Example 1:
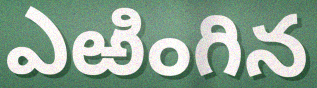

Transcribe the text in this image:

ఎఱింగిన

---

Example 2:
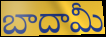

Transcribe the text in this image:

బాదామీ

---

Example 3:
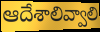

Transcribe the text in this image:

ఆదేశాలివ్వాలి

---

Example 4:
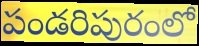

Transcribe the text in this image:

పండరిపురంలో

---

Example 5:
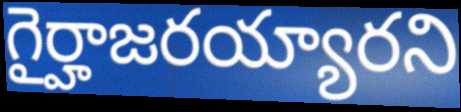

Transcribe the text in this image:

గైర్హాజరయ్యారని